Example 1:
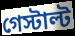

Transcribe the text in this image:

গেস্টাল্ট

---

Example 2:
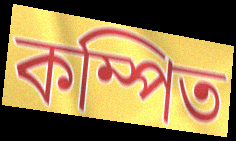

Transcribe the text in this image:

কম্পিত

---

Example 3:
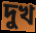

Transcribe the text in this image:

দুখ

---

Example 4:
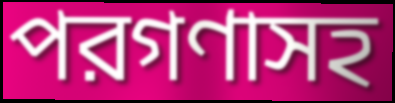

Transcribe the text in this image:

পরগণাসহ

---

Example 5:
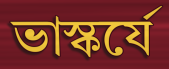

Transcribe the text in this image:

ভাস্কর্যে